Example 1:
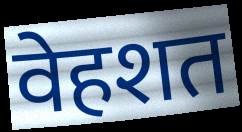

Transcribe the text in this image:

वेहशत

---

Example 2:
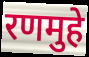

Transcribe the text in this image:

रणमुहे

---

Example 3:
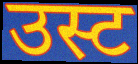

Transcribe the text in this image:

उस्ट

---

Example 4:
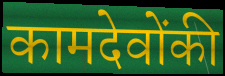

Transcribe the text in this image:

कामदेवोंकी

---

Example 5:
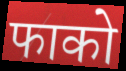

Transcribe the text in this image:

फाको